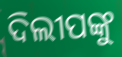
ଦିଲୀପଙ୍କୁ